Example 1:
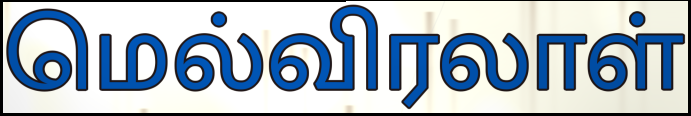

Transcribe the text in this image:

மெல்விரலாள்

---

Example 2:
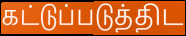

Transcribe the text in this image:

கட்டுப்படுத்திட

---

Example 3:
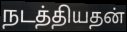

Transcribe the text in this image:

நடத்தியதன்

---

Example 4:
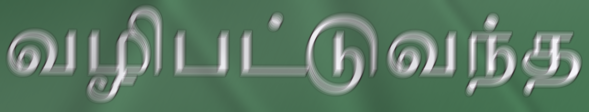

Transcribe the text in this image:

வழிபட்டுவந்த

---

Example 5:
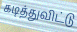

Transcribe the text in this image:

கடித்துவிட்டு